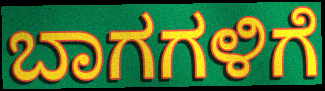
ಬಾಗಗಳಿಗೆ